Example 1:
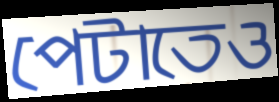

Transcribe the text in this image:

পেটাতেও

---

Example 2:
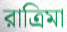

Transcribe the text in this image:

রাত্রিমা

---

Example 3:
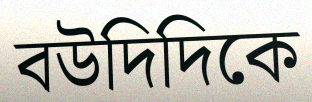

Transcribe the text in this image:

বউদিদিকে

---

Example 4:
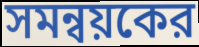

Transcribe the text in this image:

সমন্বয়কের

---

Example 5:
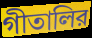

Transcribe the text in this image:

গীতালির